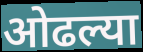
ओढल्या